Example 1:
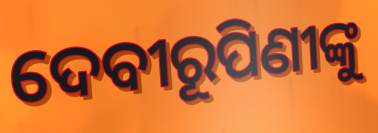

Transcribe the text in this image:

ଦେବୀରୂପିଣୀଙ୍କୁ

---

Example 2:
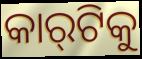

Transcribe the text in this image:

କାର୍‍ଟିକୁ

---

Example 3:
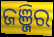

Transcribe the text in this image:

ଜଞ୍ଜିର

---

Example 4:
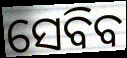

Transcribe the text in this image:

ସେବିବ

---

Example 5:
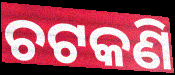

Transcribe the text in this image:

ଚଟକଣି